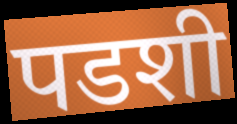
पडशी